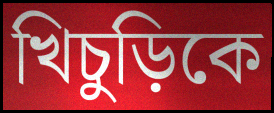
খিচুড়িকে